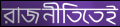
রাজনীতিতেই